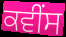
ਕਵੀਂਸ